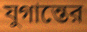
যুগান্তের